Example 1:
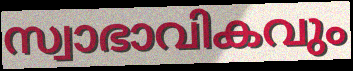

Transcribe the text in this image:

സ്വാഭാവികവും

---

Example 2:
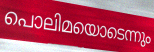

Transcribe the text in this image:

പൊലിമയൊടെന്നും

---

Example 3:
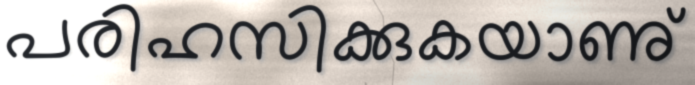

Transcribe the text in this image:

പരിഹസിക്കുകയാണു്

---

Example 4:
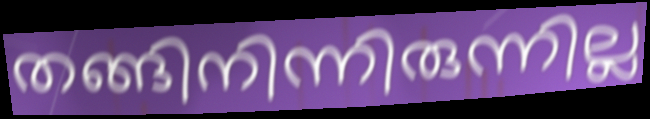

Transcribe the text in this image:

തങ്ങിനിന്നിരുന്നില്ല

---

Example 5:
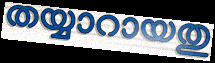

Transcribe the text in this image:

തയ്യാറായതു